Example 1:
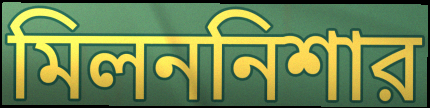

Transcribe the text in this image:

মিলননিশার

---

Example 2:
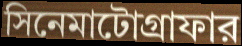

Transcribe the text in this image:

সিনেমাটোগ্রাফার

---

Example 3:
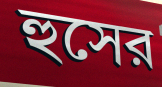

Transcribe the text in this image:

হুসের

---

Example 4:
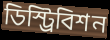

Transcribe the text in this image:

ডিস্ট্রিবিশন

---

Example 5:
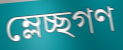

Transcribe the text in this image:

ম্লেচ্ছগণ